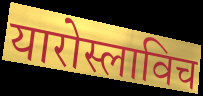
यारोस्लाविच